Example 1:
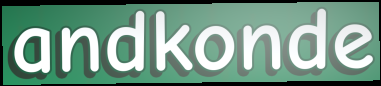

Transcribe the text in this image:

andkonde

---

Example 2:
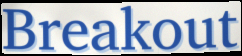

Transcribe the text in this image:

Breakout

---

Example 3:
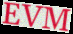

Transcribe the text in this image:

EVM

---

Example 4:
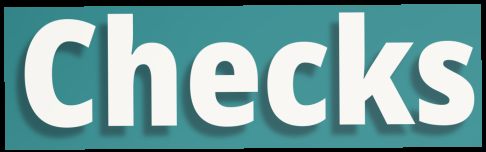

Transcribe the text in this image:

Checks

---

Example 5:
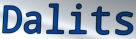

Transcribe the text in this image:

Dalits